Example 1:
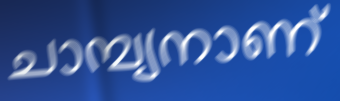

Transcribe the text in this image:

ചാമ്പ്യനാണ്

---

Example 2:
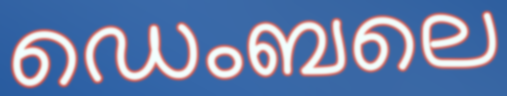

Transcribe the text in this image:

ഡെംബലെ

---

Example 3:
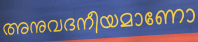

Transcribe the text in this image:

അനുവദനീയമാണോ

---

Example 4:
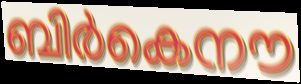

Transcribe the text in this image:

ബിർകെനൗ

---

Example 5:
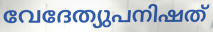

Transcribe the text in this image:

വേദേത്യുപനിഷത്